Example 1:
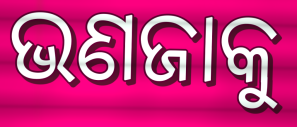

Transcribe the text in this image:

ଭଣଜାକୁ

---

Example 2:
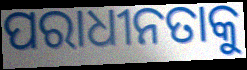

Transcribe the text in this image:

ପରାଧୀନତାକୁ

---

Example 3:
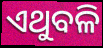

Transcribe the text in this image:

ଏଥୁବଳି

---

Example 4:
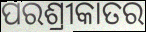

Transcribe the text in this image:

ପରଶ୍ରୀକାତର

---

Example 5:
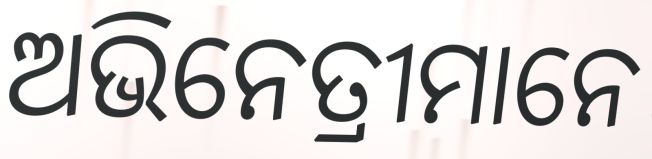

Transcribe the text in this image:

ଅଭିନେତ୍ରୀମାନେ